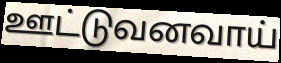
ஊட்டுவனவாய்